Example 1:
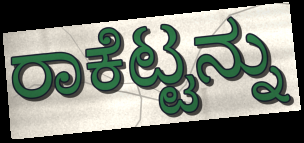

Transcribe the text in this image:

ರಾಕೆಟ್ಟನ್ನು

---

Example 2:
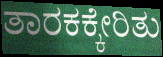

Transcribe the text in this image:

ತಾರಕಕ್ಕೇರಿತು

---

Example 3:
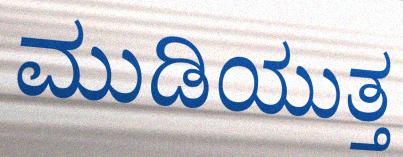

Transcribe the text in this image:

ಮುಡಿಯುತ್ತ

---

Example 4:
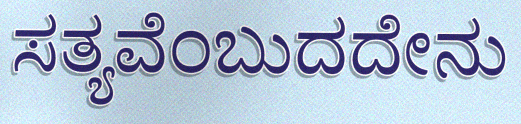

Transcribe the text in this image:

ಸತ್ಯವೆಂಬುದದೇನು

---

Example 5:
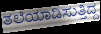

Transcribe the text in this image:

ತಲೆಯಾಡಿಸುತ್ತಿದ್ದ